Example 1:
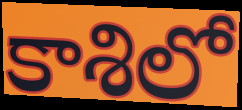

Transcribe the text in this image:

కాశిలో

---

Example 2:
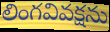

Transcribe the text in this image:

లింగవివక్షను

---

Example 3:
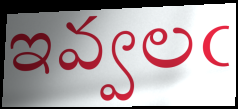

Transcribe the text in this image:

ఇవ్వలఁ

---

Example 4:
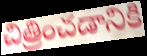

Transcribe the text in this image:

చిత్రించడానికి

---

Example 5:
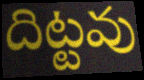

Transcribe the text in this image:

దిట్టవు